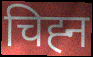
चिह्‍न